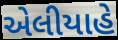
એલીયાહે